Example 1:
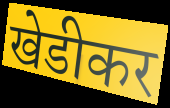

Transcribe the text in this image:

खेडीकर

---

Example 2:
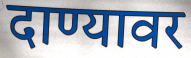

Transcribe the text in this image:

दाण्यावर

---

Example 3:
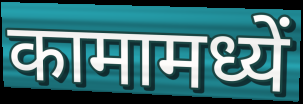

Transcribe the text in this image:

कामामध्यें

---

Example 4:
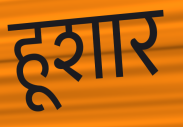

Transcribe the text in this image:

हूशार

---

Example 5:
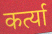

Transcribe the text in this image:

कर्त्या